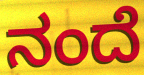
ನಂದೆ